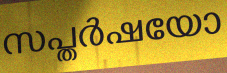
സപ്തർഷയോ